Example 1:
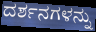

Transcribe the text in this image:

ದರ್ಶನಗಳನ್ನು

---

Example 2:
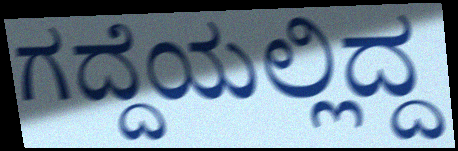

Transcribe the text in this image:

ಗದ್ದೆಯಲ್ಲಿದ್ದ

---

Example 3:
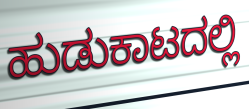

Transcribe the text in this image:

ಹುಡುಕಾಟದಲ್ಲಿ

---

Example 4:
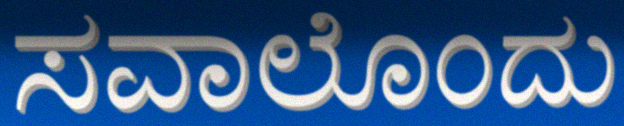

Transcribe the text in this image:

ಸವಾಲೊಂದು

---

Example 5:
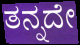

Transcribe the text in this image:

ತನ್ನದೇ